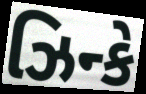
ઝિન્કે